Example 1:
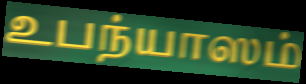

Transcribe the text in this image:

உபந்யாஸம்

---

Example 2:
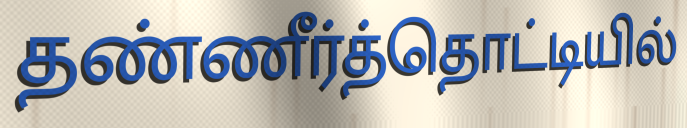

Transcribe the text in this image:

தண்ணீர்த்தொட்டியில்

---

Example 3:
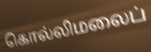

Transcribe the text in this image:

கொல்லிமலைப்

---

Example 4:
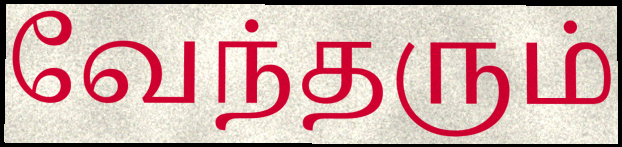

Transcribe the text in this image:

வேந்தரும்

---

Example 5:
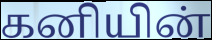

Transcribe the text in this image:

கனியின்